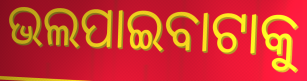
ଭଲପାଇବାଟାକୁ